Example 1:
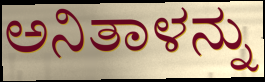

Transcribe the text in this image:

ಅನಿತಾಳನ್ನು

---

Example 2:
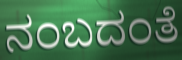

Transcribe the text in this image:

ನಂಬದಂತೆ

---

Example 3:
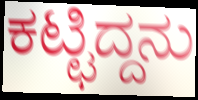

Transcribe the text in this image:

ಕಟ್ಟಿದ್ದನು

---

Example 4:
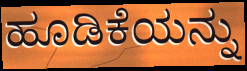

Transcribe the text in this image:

ಹೂಡಿಕೆಯನ್ನು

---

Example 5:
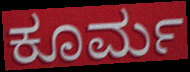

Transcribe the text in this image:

ಕೂರ್ಮ